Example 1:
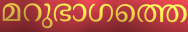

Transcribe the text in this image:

മറുഭാഗത്തെ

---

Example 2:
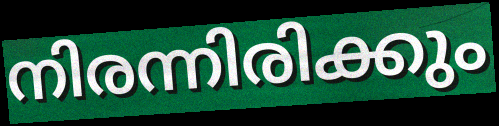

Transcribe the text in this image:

നിരന്നിരിക്കും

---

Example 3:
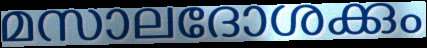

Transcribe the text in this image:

മസാലദോശക്കും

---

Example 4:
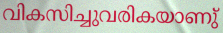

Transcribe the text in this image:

വികസിച്ചുവരികയാണു്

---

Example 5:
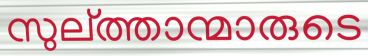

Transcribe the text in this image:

സുല്ത്താന്മാരുടെ